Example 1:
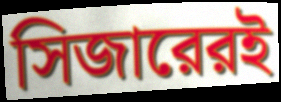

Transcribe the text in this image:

সিজারেরই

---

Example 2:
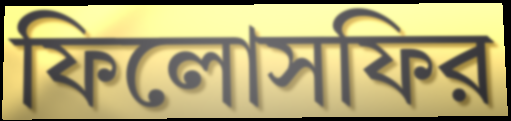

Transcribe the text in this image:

ফিলোসফির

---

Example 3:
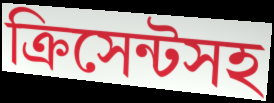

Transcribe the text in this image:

ক্রিসেন্টসহ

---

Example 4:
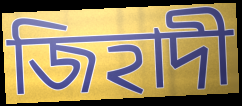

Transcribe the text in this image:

জিহাদী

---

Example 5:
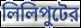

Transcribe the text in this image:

লিলিপুটের